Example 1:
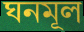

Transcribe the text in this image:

ঘনমূল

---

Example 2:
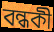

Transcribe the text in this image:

বন্ধকী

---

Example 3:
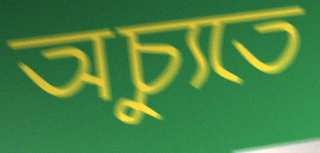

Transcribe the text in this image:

অচ্যুতে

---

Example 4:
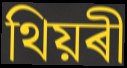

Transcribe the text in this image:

থিয়ৰী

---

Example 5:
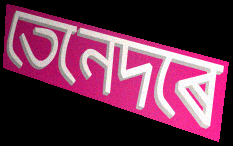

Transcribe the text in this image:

তেনেদৰে